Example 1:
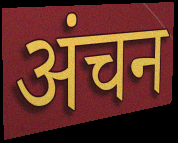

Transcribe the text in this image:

अंचन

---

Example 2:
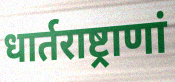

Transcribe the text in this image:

धार्तराष्ट्राणां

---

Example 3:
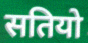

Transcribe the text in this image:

सतियो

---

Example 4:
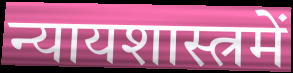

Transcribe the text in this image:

न्यायशास्त्रमें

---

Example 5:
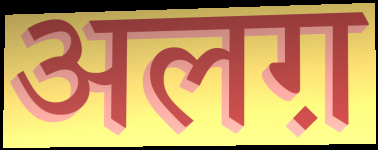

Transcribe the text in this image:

अलग़